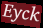
Eyck